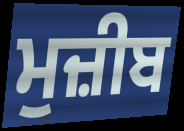
ਮੁਜ਼ੀਬ